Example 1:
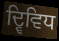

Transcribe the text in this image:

ਦ੍ਵਿਵਿਧ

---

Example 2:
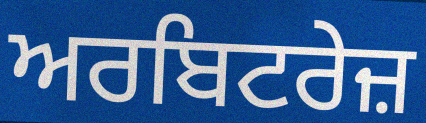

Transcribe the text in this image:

ਅਰਬਿਟਰੇਜ਼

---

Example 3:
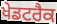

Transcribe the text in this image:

ਖੇਡਟਰੈਕ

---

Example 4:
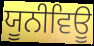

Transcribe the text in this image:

ਯੂਨੀਵਿਊ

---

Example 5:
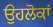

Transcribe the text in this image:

ਉਹਲੋਕਾਂ